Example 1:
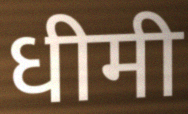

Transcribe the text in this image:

धीमी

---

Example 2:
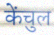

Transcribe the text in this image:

केंचुल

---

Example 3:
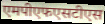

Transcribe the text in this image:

एमपीएफएसटीएस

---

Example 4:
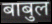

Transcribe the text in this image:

बाबुल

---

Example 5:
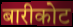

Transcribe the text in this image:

बारीकोट